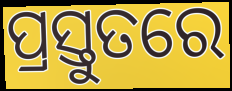
ପ୍ରସ୍ତୁତରେ